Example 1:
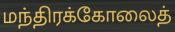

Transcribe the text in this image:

மந்திரக்கோலைத்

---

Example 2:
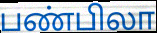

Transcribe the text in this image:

பண்பிலா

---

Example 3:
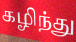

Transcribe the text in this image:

கழிந்து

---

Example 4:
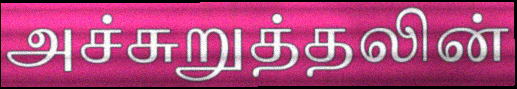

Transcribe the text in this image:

அச்சுறுத்தலின்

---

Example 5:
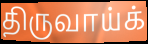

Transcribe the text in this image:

திருவாய்க்